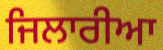
ਜਿਲਾਰੀਆ